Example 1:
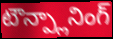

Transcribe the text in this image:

టౌన్ప్లానింగ్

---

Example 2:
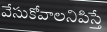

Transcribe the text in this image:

వేసుకోవాలనిపిస్తే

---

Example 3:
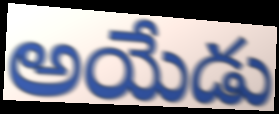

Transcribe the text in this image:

అయేడు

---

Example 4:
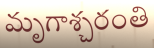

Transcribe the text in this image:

మృగాశ్చరంతి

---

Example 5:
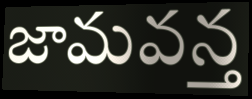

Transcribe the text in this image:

జామవన్త